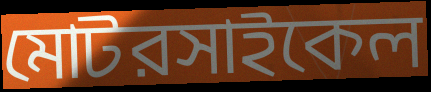
মোটরসাইকেল